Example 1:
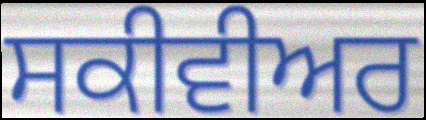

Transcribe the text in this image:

ਸਕੀਵੀਅਰ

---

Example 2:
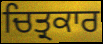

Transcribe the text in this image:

ਚਿਤ੍ਰਕਾਰ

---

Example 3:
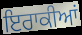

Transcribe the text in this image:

ਇਰਾਕੀਆਂ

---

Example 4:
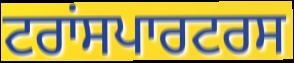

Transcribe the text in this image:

ਟਰਾਂਸਪਾਰਟਰਸ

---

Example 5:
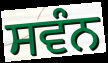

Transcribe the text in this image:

ਸਵੰਨ